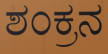
ಶಂಕ್ರನ